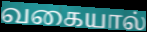
வகையால்